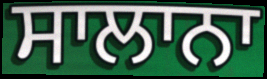
ਸਾਲਾਨਾ